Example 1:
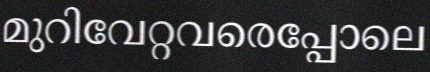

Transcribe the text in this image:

മുറിവേറ്റവരെപ്പോലെ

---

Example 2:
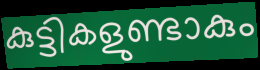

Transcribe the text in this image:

കുട്ടികളുണ്ടാകും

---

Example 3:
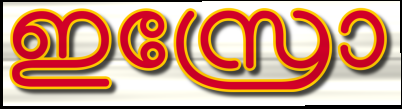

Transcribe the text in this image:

ഇസ്രോ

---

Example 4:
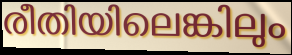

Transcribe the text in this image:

രീതിയിലെങ്കിലും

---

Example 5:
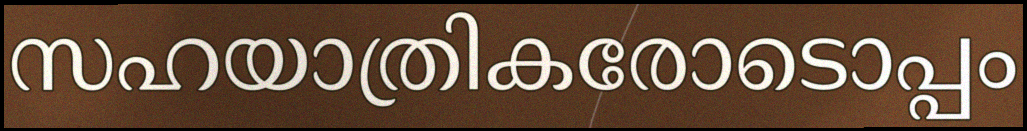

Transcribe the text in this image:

സഹയാത്രികരോടൊപ്പം